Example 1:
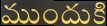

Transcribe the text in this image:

ముందుకి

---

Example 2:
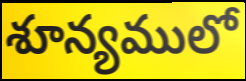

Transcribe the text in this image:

శూన్యములో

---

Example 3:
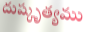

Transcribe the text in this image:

దుష్కృత్యము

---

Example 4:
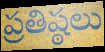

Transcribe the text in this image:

ప్రతిష్ఠలు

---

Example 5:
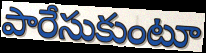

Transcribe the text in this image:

పారేసుకుంటూ